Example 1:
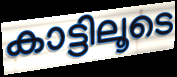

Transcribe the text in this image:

കാട്ടിലൂടെ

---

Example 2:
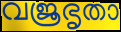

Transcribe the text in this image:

വജ്രഭൃതാ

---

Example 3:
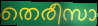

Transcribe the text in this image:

തെരീസാ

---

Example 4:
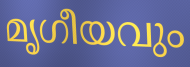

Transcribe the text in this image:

മൃഗീയവും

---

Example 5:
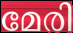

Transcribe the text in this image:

മേരി